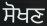
ਸੋਖਣ